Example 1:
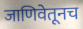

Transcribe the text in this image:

जाणिवेतूनच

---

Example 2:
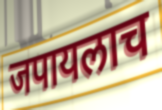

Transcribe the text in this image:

जपायलाच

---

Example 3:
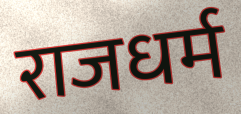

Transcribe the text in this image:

राजधर्म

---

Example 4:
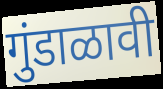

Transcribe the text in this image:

गुंडाळावी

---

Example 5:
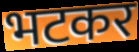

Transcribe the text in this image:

भटकर